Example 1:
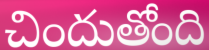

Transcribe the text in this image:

చిందుతోంది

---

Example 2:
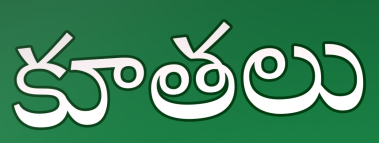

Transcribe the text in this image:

కూతలు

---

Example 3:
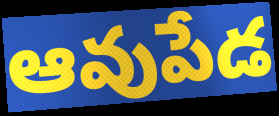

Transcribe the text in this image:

ఆవుపేడ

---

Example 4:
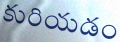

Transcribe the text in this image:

కురియడం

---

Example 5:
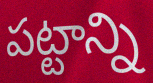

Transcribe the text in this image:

పట్టాన్ని